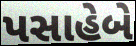
પસાહેબે